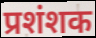
प्रशंशक